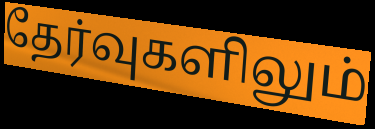
தேர்வுகளிலும்